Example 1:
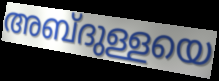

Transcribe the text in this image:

അബ്ദുള്ളയെ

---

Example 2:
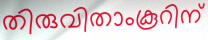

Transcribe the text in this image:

തിരുവിതാംകൂറിന്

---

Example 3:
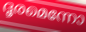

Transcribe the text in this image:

ദൂരമെന്നോ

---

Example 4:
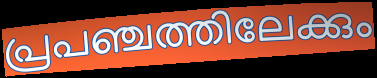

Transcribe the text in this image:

പ്രപഞ്ചത്തിലേക്കും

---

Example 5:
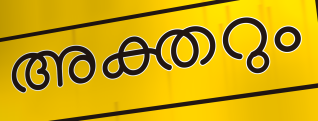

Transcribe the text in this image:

അക്തറും